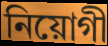
নিয়োগী